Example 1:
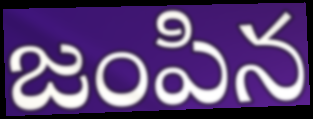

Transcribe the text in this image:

జంపిన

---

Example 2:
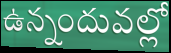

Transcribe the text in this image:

ఉన్నందువల్లో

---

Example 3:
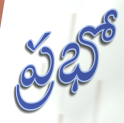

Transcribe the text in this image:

ప్రభో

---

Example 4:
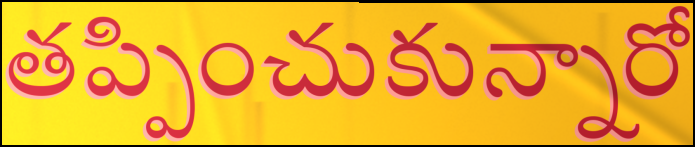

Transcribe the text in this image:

తప్పించుకున్నారో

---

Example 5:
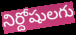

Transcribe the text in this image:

నిర్దోషులగు